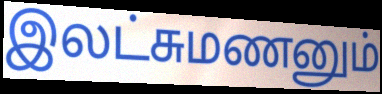
இலட்சுமணனும்